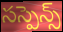
సస్పెన్స్